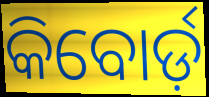
କିବୋର୍ଡ଼